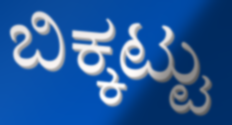
ಬಿಕ್ಕಟ್ಟು